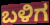
ಬಳಿಗ